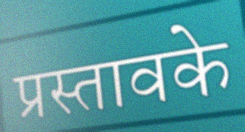
प्रस्तावके